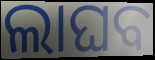
ଲାଘବ